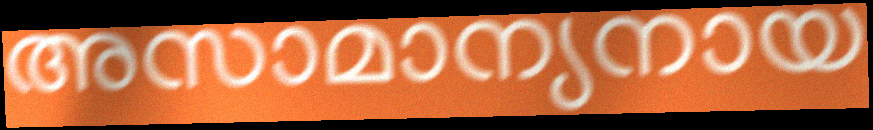
അസാമാന്യനായ